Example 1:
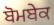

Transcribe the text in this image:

ਬੋਮਬੇਕ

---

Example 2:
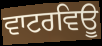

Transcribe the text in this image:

ਵਾਟਰਵਿਊ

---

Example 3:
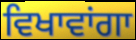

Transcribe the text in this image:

ਵਿਖਾਵਾਂਗਾ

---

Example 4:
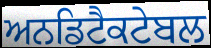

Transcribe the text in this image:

ਅਨਡਿਟੈਕਟੇਬਲ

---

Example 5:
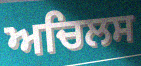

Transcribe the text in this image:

ਅਚਿਲਸ